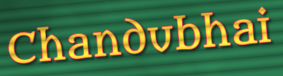
Chandubhai